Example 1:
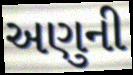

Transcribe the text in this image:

અણુની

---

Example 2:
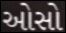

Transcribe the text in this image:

ઓસો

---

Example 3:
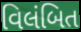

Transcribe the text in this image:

વિલંબિત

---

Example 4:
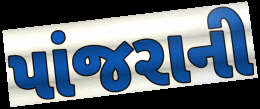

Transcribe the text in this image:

પાંજરાની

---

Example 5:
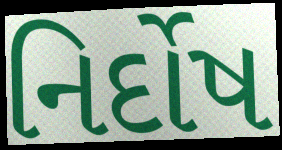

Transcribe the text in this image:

નિર્દોષ